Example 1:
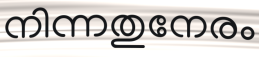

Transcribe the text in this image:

നിന്നതുനേരം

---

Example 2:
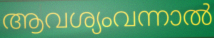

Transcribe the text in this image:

ആവശ്യംവന്നാൽ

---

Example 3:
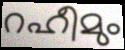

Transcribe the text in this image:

റഹീമും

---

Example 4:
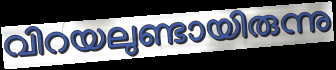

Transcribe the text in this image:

വിറയലുണ്ടായിരുന്നു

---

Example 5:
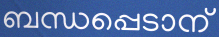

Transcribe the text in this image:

ബന്ധപ്പെടാന്